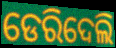
ଡେରିଦେଲି